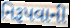
નિરૂપવાની